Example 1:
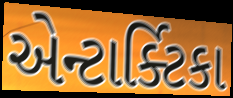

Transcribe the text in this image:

એન્ટાર્ક્ટિકા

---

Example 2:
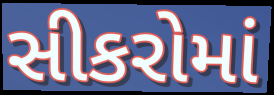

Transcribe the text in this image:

સીકરોમાં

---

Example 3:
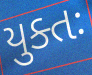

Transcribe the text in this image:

યુક્તઃ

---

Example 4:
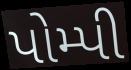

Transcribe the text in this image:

પોમ્પી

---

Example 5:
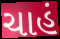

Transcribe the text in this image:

ચાહં